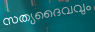
സത്യദൈവവും